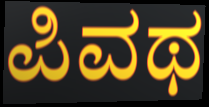
ಪಿವಥ